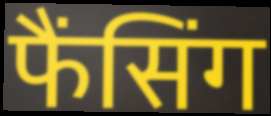
फैंसिंग